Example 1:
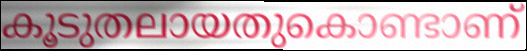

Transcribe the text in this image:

കൂടുതലായതുകൊണ്ടാണ്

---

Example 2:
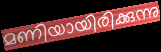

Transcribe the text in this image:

മണിയായിരിക്കുന്നു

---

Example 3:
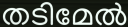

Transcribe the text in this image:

തടിമേൽ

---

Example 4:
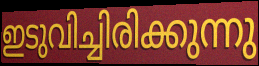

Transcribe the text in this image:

ഇടുവിച്ചിരിക്കുന്നു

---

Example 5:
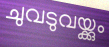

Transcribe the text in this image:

ചുവടുവയ്ക്കും